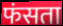
फंसता